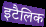
इटैलिक